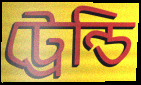
ট্রেন্ডি